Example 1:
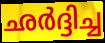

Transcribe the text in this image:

ഛർദ്ദിച്ച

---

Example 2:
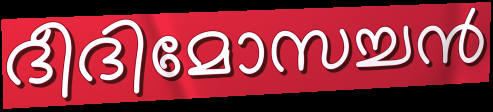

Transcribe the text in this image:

ദീദിമോസച്ചൻ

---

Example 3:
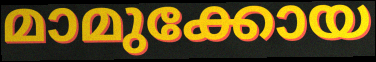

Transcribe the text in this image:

മാമുക്കോയ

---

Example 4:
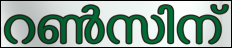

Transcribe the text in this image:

റൺസിന്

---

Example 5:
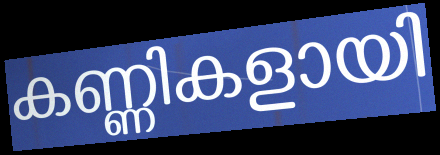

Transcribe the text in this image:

കണ്ണികളായി